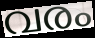
വരം